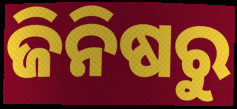
ଜିନିଷରୁ